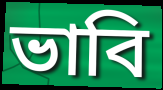
ভাবি